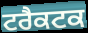
ਟਰੈਕਟਕ